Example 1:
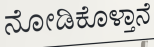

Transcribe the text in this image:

ನೋಡಿಕೊಳ್ತಾನೆ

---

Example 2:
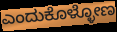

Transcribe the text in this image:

ಎಂದುಕೊಳ್ಳೋಣ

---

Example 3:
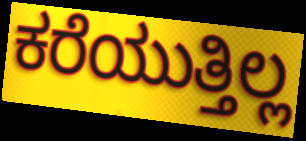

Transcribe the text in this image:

ಕರೆಯುತ್ತಿಲ್ಲ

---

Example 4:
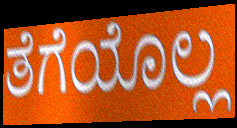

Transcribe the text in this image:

ತೆಗೆಯೊಲ್ಲ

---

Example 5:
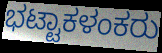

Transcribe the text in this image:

ಭಟ್ಟಾಕಳಂಕರು